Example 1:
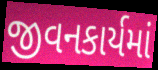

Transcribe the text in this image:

જીવનકાર્યમાં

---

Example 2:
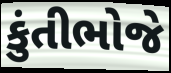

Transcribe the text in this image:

કુંતીભોજે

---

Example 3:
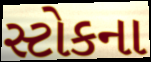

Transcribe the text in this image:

સ્ટોકના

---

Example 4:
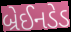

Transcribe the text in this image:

બ્રેઈનડેડ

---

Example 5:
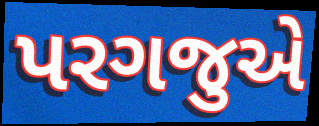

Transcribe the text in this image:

પરગજુએ